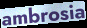
ambrosia